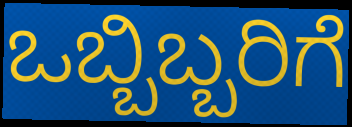
ಒಬ್ಬಿಬ್ಬರಿಗೆ